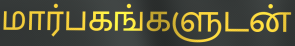
மார்பகங்களுடன்